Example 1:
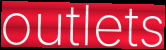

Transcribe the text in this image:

outlets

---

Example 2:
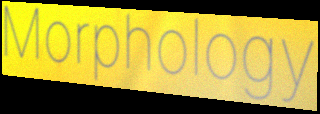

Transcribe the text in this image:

Morphology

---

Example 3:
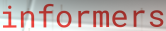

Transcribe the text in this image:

informers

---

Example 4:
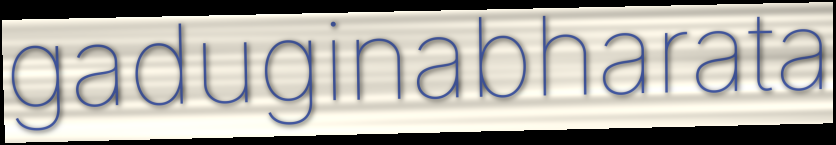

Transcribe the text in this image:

gaduginabharata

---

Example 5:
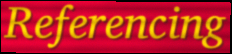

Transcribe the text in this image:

Referencing